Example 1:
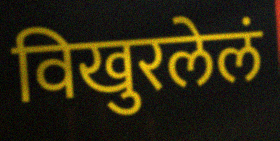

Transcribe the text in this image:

विखुरलेलं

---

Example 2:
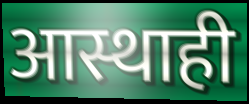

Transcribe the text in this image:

आस्थाही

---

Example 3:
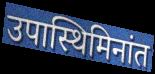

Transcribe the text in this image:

उपास्थिमिनांत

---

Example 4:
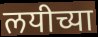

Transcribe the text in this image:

लयीच्या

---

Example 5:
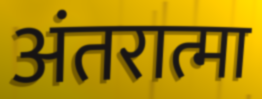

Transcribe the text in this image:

अंतरात्मा